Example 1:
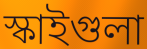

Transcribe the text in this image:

স্কাইগুলা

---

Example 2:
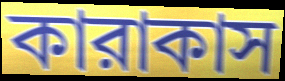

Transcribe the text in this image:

কারাকাস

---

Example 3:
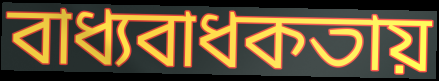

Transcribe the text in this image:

বাধ্যবাধকতায়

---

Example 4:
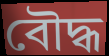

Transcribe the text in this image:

বৌদ্ধ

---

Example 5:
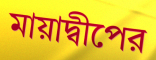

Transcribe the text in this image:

মায়াদ্বীপের